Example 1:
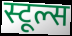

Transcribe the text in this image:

स्टूल्स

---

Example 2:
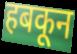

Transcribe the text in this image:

हबकून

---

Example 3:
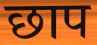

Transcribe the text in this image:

छाप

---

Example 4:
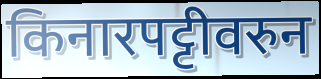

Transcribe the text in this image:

किनारपट्टीवरुन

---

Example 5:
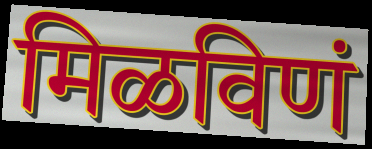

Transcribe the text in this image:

मिळविणं